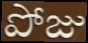
పోజు